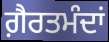
ਗ਼ੈਰਤਮੰਦਾਂ